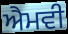
ਐਮਵੀ